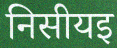
निसीयइ